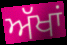
ਅੱਖਾਂ